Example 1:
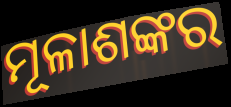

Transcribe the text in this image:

ମୂଳାଶଙ୍କର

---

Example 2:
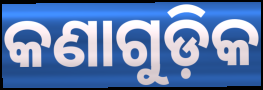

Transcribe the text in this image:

କଣାଗୁଡ଼ିକ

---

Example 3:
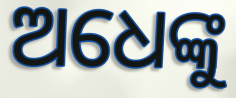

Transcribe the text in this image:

ଅଧେଙ୍କୁ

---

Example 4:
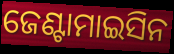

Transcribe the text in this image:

ଜେଣ୍ଟାମାଇସିନ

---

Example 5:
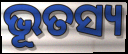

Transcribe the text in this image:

ଭୂତସ୍ୟ